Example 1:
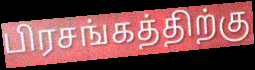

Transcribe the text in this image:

பிரசங்கத்திற்கு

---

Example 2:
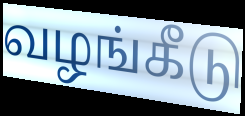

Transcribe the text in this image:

வழங்கீடு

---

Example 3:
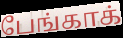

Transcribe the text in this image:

பேங்காக்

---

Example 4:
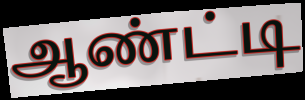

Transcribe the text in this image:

ஆண்ட்டி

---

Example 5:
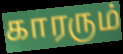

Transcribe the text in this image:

காரரும்